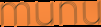
munu